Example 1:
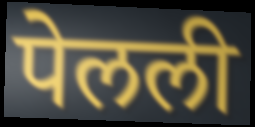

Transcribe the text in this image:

पेलली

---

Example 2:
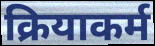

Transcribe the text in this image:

क्रियाकर्म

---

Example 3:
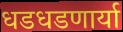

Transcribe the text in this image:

धडधडणार्या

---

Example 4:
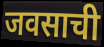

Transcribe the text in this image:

जवसाची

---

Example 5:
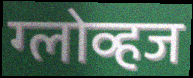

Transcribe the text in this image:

ग्लोव्हज